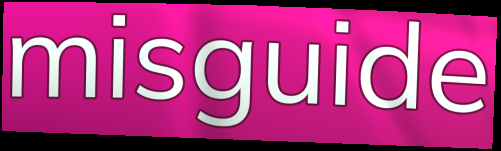
misguide